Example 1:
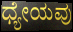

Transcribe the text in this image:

ಧ್ಯೇಯವು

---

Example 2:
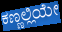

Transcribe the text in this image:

ಕಣ್ಣಲ್ಲಿಯೇ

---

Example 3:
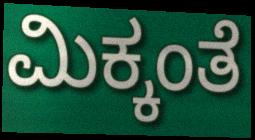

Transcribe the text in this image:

ಮಿಕ್ಕಂತೆ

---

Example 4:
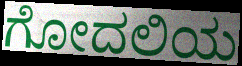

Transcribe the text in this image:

ಗೋದಲಿಯ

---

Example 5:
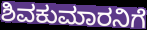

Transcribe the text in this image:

ಶಿವಕುಮಾರನಿಗೆ